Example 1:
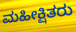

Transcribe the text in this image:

ಮಹೀಕ್ಷಿತರು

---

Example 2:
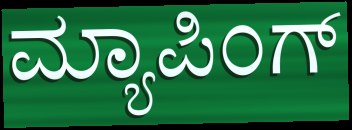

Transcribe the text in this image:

ಮ್ಯಾಪಿಂಗ್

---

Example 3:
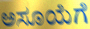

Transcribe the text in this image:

ಅಸೂಯೆಗೆ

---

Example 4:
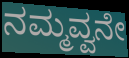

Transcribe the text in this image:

ನಮ್ಮವ್ವನೇ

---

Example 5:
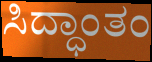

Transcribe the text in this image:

ಸಿದ್ಧಾಂತಂ